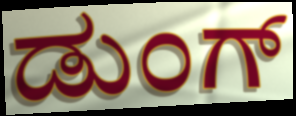
ಡುಂಗ್